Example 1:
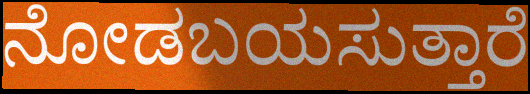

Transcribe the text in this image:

ನೋಡಬಯಸುತ್ತಾರೆ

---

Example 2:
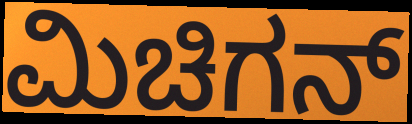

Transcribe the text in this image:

ಮಿಚಿಗನ್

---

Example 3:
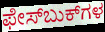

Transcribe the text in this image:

ಫೇಸ್‌ಬುಕ್‌ಗಳ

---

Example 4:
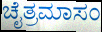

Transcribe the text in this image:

ಚೈತ್ರಮಾಸಂ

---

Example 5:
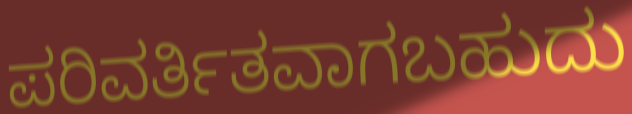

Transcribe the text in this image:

ಪರಿವರ್ತಿತವಾಗಬಹುದು